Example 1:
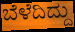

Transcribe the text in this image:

ಬೆಳೆದಿದ್ದು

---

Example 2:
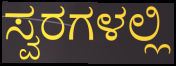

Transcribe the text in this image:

ಸ್ವರಗಳಲ್ಲಿ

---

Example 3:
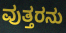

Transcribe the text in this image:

ವುತ್ತರನು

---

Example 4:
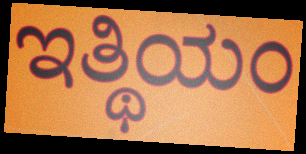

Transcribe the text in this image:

ಇತ್ಥಿಯಂ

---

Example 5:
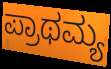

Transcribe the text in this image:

ಪ್ರಾಥಮ್ಯ